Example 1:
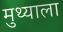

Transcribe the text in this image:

मुथ्याला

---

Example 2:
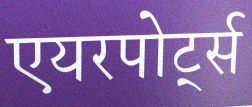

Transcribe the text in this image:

एयरपोर्ट्स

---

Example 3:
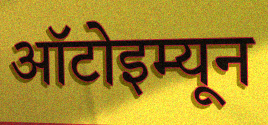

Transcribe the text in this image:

ऑटोइम्‍यून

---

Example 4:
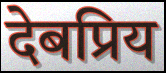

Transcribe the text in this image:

देबप्रिय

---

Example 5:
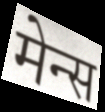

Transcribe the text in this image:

मेन्स